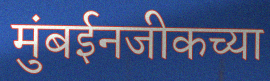
मुंबईनजीकच्या